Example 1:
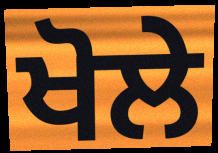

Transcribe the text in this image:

ਖੋਲੇ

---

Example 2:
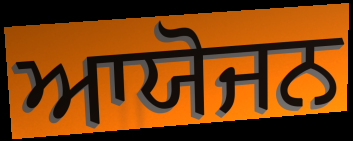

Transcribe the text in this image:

ਆਯੋਜਨ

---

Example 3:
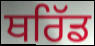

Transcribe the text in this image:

ਥਰਿੱਡ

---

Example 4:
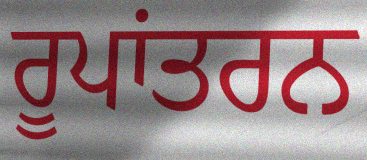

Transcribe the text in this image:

ਰੂਪਾਂਤਰਨ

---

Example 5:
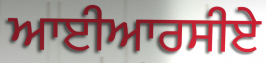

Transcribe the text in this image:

ਆਈਆਰਸੀਏ